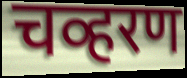
चव्हरण